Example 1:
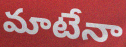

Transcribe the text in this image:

మాటేనా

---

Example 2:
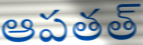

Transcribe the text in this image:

ఆపతత్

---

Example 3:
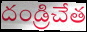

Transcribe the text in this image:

దండ్రిచేత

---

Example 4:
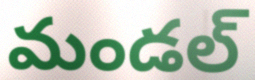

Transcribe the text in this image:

మండల్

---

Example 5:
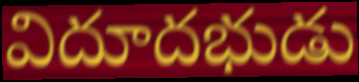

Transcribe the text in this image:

విదూదభుడు